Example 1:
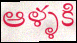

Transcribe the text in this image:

ఆళ్ళకి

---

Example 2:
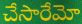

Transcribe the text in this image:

చేసారేమో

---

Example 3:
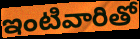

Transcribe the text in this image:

ఇంటివారితో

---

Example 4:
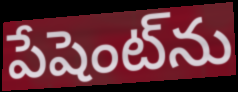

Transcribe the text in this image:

పేషెంట్‌ను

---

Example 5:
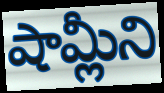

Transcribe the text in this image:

షామ్లీని